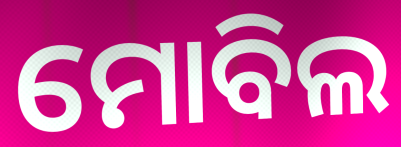
ମୋବିଲ